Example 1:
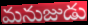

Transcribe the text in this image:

మనుజుడు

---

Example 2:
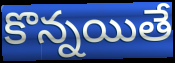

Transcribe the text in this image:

కొన్నయితే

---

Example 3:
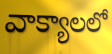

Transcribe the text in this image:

వాక్యాలలో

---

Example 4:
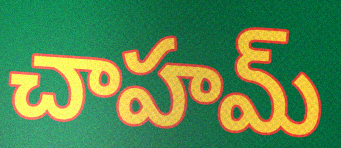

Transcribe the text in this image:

చాహమ్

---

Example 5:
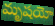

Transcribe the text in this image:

మృషయో